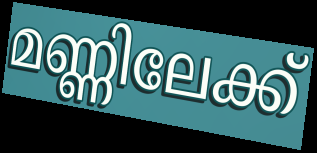
മണ്ണിലേക്ക്